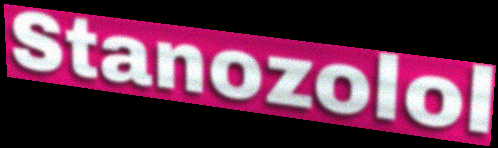
Stanozolol